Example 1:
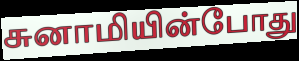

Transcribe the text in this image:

சுனாமியின்போது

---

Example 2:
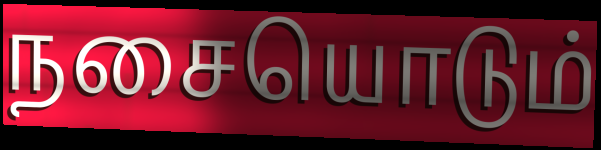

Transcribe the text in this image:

நசையொடும்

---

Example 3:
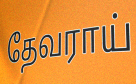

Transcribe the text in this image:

தேவராய்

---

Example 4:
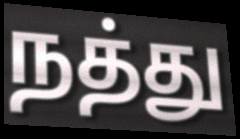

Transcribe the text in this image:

நத்து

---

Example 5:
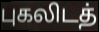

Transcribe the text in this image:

புகலிடத்